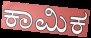
ಕಾಮಿಕ